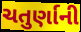
ચતુર્ણાની